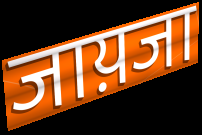
जाय़जा